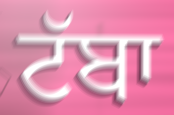
ਟੱਬਾ